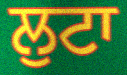
ਲੁਟਾ